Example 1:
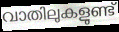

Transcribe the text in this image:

വാതിലുകളുണ്ട്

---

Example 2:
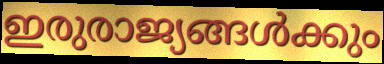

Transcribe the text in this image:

ഇരുരാജ്യങ്ങൾക്കും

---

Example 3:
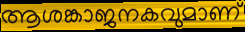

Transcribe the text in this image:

ആശങ്കാജനകവുമാണ്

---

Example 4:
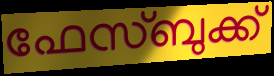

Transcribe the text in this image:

ഫേസ്ബുക്ക്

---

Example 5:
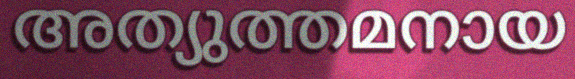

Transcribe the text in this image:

അത്യുത്തമനായ